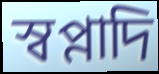
স্বপ্নাদি